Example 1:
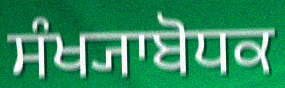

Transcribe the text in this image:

ਸੰਖ੍ਯਾਬੋਧਕ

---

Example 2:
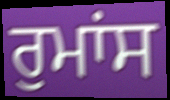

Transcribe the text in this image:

ਰੁਮਾਂਸ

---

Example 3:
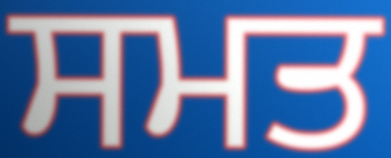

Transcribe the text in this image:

ਸਮਤ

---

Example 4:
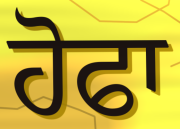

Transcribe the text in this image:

ਹੋਫਾ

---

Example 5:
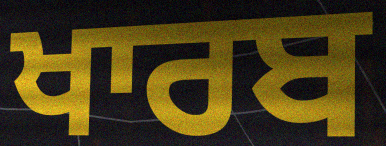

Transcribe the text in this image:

ਖਾਰਬ